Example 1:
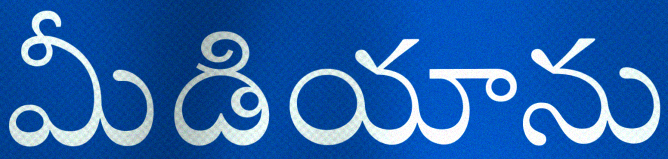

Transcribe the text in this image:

మీడియాను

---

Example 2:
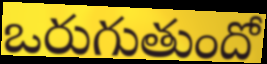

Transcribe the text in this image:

ఒరుగుతుందో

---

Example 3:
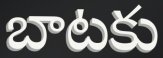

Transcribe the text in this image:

బాటకు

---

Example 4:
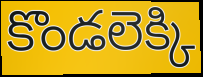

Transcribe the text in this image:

కొండలెక్కి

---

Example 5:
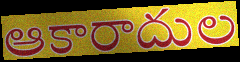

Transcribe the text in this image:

ఆకారాదుల